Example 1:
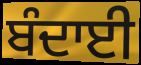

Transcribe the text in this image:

ਬੰਦਾਈ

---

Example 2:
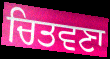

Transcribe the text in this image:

ਚਿਤਵਣਾ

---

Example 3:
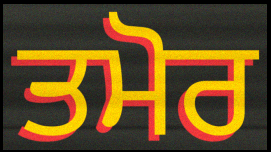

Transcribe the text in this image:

ਤਮੋਰ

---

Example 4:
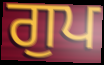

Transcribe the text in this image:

ਗੁਪ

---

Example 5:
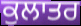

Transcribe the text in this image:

ਕੁਲਾਤਰ